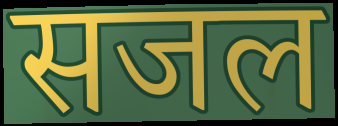
सजल